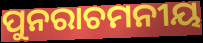
ପୁନରାଚମନୀୟ